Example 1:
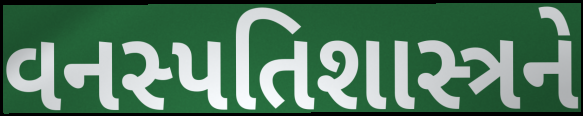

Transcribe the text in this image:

વનસ્પતિશાસ્ત્રને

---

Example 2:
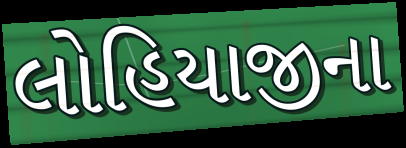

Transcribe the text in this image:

લોહિયાજીના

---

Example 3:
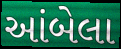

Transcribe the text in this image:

આંબેલા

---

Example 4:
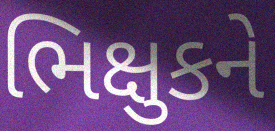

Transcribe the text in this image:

ભિક્ષુકને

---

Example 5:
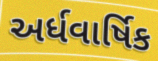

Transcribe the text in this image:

અર્ધવાર્ષિક